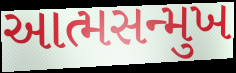
આત્મસન્મુખ